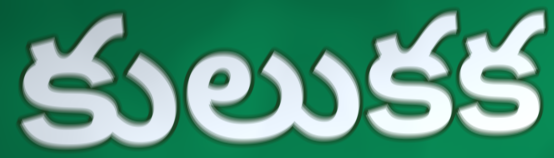
కులుకక